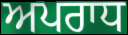
ਅਪਰਾਧ